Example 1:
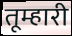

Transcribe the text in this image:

तूम्हारी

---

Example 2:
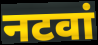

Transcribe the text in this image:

नटवां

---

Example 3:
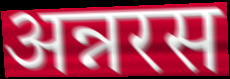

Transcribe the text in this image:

अन्नरस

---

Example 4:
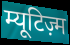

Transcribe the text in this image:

म्यूटिज़्म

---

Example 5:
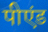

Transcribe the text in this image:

पीएंड